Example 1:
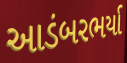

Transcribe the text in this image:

આડંબરભર્યા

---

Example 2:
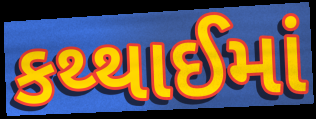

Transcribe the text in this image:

કથ્થાઈમાં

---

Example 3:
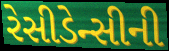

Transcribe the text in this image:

રેસીડેન્સીની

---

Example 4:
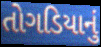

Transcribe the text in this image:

તોગડિયાનું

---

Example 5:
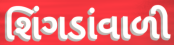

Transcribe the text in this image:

શિંગડાંવાળી